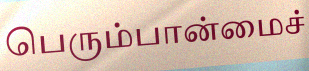
பெரும்பான்மைச்